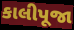
કાલીપૂજા